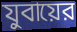
যুবায়ের